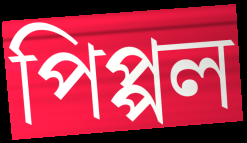
পিপ্পল